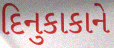
દિનુકાકાને